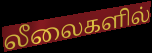
லீலைகளில்